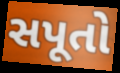
સપૂતો